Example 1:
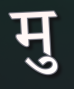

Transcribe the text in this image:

मु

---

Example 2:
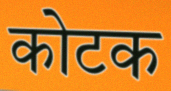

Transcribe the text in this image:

कोटक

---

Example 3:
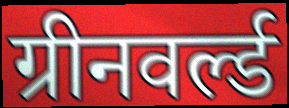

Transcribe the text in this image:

ग्रीनवर्ल्ड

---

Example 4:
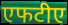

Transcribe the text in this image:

एफटीए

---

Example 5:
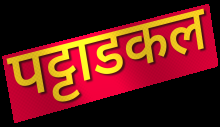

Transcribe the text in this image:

पट्टाडकल